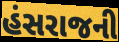
હંસરાજની